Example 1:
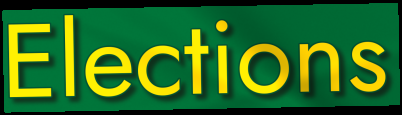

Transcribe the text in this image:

Elections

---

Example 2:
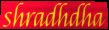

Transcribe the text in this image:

shradhdha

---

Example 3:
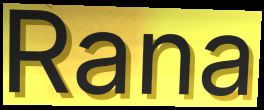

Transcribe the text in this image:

Rana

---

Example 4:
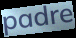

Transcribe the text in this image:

padre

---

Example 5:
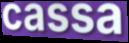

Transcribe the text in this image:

cassa